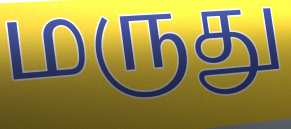
மருது